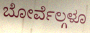
ಬೋರ್ವೆಲ್ಗಳೂ